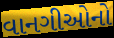
વાનગીઓનો